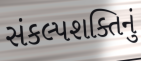
સંકલ્પશક્તિનું